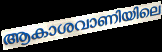
ആകാശവാണിയിലെ